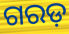
ଗରଡ଼